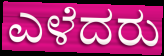
ಎಳೆದರು